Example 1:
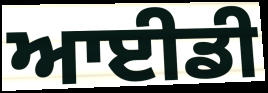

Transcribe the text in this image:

ਆਈਡੀ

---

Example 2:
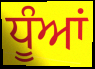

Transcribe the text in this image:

ਧੂੰਆਂ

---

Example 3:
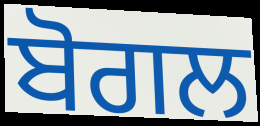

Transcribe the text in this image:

ਬੋਗਲ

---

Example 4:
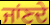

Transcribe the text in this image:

ਜਾਂਣਦੇ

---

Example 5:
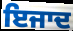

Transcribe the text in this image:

ਇਜਾਦ